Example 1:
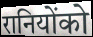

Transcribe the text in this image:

रानियोंको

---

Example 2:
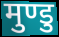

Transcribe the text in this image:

मुण्डु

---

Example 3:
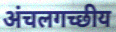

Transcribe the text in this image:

अंचलगच्छीय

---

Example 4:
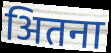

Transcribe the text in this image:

अितना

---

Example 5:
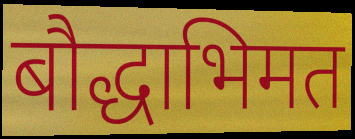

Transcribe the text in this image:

बौद्धाभिमत